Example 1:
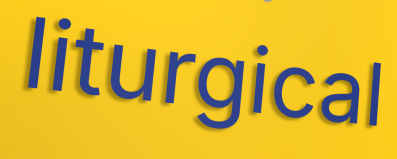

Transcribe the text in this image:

liturgical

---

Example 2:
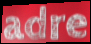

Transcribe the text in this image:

adre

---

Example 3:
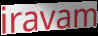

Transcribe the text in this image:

iravam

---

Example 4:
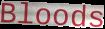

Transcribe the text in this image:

Bloods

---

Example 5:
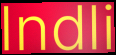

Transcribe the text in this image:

Indli